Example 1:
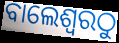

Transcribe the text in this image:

ବାଲେଶ୍ୱରଠୁ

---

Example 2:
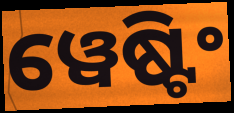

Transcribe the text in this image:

ୱେଷ୍ଟିଂ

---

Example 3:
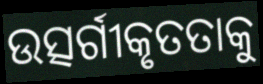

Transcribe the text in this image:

ଉତ୍ସର୍ଗୀକୃତତାକୁ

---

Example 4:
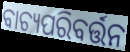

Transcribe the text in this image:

ବାଚ୍ୟପରିବର୍ତ୍ତନ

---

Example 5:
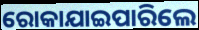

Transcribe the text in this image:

ରୋକାଯାଇପାରିଲେ